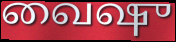
வைஷு